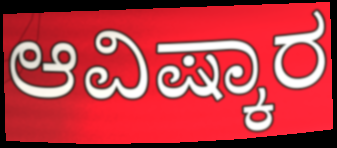
ಆವಿಷ್ಕಾರ